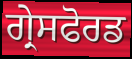
ਗ੍ਰੇਸਫੋਰਡ